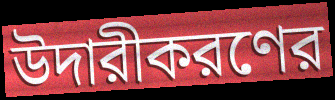
উদারীকরণের